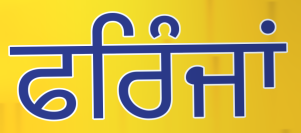
ਫਰਿੰਜਾਂ